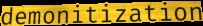
demonitization